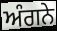
ਅੰਗਨੇ